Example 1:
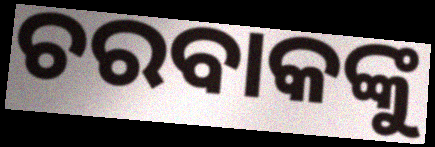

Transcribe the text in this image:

ଚରବାକଙ୍କୁ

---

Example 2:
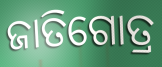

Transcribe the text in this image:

ଜାତିଗୋତ୍ର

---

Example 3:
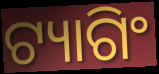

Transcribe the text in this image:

ଟ୍ୟାଗିଂ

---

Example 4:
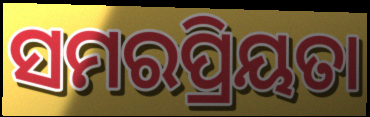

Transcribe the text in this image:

ସମରପ୍ରିୟତା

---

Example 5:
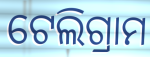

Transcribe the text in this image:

ଟେଲିଗ୍ରାମ